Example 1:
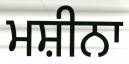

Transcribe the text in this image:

ਮਸ਼ੀਨਾ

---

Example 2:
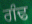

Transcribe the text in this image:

ਗੰਢ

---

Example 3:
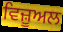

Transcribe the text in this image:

ਵਿਜ਼ੂਅਲ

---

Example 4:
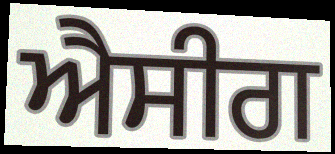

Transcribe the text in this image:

ਐਸੀਗ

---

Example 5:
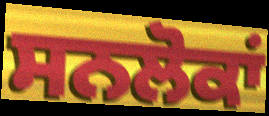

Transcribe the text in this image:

ਸਨਲੋਕਾਂ